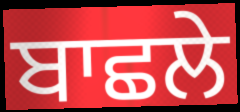
ਬਾਛਲੇ